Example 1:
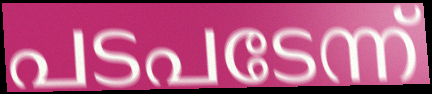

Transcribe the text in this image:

പടപടേന്ന്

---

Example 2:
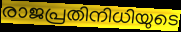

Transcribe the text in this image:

രാജപ്രതിനിധിയുടെ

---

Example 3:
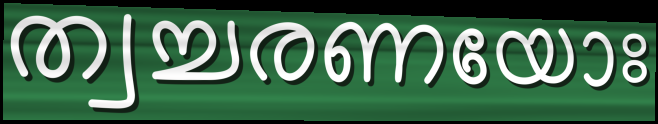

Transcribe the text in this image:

ത്വച്ചരണയോഃ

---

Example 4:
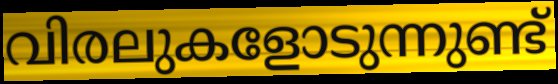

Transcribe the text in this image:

വിരലുകളോടുന്നുണ്ട്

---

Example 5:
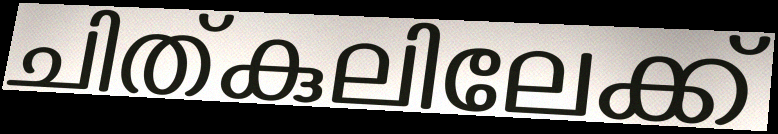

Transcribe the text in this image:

ചിത്കുലിലേക്ക്